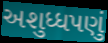
અશુધ્ધપણું